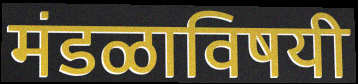
मंडळाविषयी